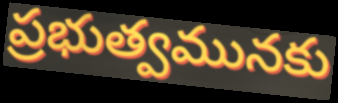
ప్రభుత్వమునకు